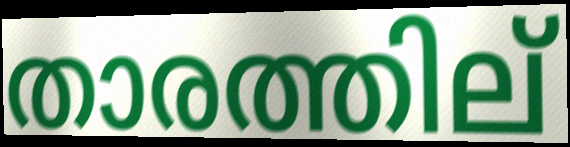
താരത്തില്